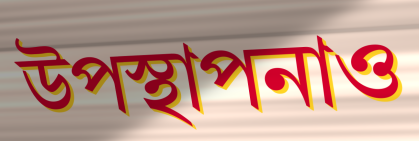
উপস্থাপনাও